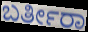
ಬರ್ತೀರಾ